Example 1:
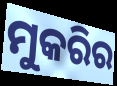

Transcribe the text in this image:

ମୁକରିର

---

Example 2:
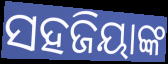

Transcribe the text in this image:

ସହଜିୟାଙ୍କ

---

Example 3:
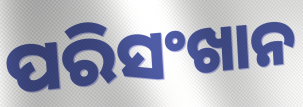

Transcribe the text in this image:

ପରିସଂଖାନ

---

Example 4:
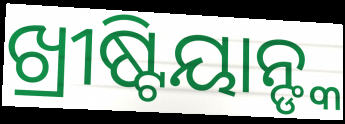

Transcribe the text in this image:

ଖ୍ରୀଷ୍ଟିୟାନ୍ଙ୍କ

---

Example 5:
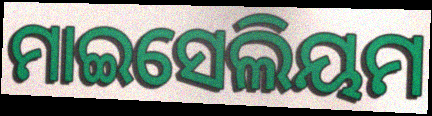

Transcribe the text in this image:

ମାଇସେଲିୟମ